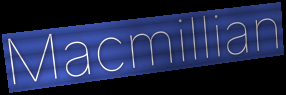
Macmillian